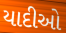
યાદીઓ